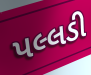
પલ્લડી